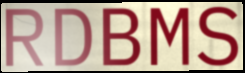
RDBMS